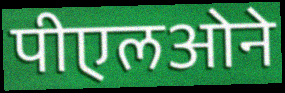
पीएलओने